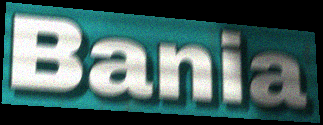
Bania